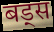
बड्स